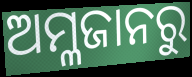
ଅମ୍ଳଜାନରୁ